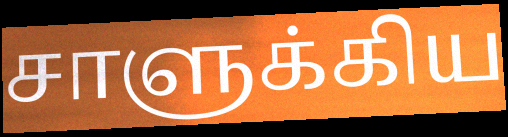
சாளுக்கிய